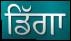
ਡਿੱਗਾ